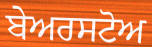
ਬੇਅਰਸਟੋਅ